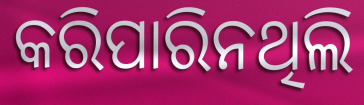
କରିପାରିନଥିଲି